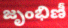
జృంభిణీ